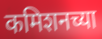
कमिशनच्या